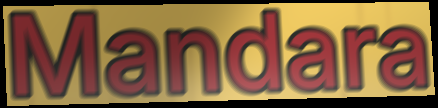
Mandara